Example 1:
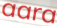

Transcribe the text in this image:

aara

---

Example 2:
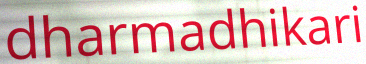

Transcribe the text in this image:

dharmadhikari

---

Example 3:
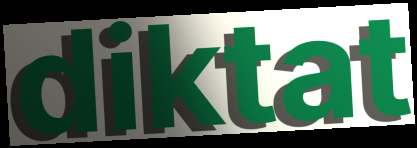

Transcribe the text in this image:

diktat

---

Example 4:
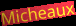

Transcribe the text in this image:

Micheaux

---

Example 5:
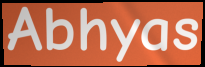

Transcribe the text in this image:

Abhyas